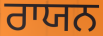
ਰਾਯਨ